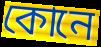
কোনে